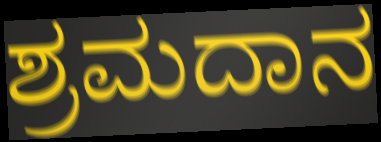
ಶ್ರಮದಾನ